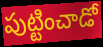
పుట్టించాడో